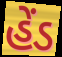
હેંડ